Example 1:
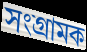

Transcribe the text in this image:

সংগ্ৰামক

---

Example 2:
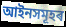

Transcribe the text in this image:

আইনসমূহৰ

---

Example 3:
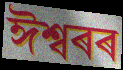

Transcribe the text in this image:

ঈশ্বৰৰ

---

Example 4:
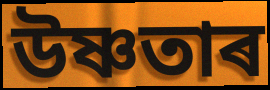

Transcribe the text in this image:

উষ্ণতাৰ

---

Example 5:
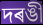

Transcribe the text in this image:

দৰঙী